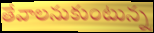
తేవాలనుకుంటున్న